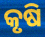
କୃଷି